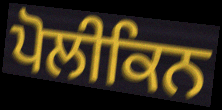
ਪੋਲੀਕਿਨ